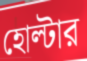
হোল্টার